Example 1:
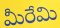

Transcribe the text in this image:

మీరేమి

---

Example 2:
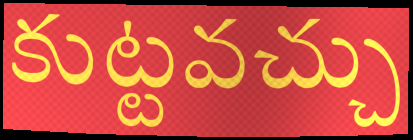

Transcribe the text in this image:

కుట్టవచ్చు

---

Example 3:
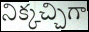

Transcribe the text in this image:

నిక్కచ్చిగా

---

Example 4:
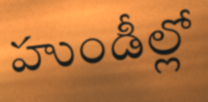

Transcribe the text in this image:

హుండీల్లో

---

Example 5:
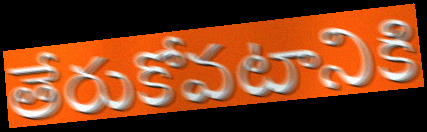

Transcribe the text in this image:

తేరుకోవటానికి